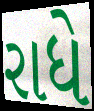
રાધે